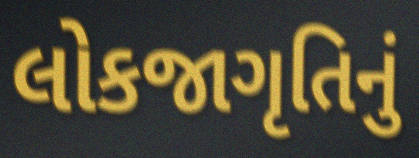
લોકજાગૃતિનું